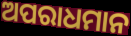
ଅପରାଧମାନ